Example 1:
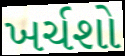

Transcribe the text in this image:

ખર્ચશો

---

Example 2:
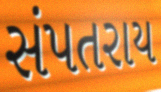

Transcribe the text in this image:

સંપતરાય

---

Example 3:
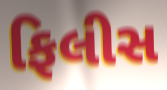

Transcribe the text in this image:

ફિલીસ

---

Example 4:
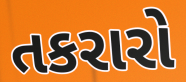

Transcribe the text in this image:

તકરારો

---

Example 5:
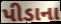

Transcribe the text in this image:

પીડાના